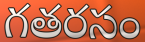
గతరసం